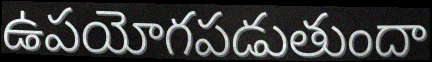
ఉపయోగపడుతుందా